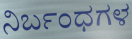
ನಿರ್ಬಂಧಗಳ